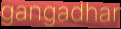
gangadhar